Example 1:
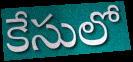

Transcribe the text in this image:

కేసులో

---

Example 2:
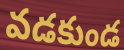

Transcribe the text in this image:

వడకుండ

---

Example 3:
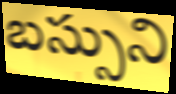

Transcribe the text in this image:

బస్సుని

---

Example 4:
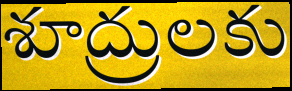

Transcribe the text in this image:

శూద్రులకు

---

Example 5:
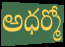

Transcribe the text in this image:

అధర్మో